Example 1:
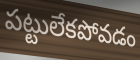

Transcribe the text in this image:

పట్టులేకపోవడం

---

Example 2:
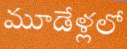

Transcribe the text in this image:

మూడేళ్లలో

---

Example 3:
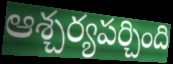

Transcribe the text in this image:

ఆశ్చర్యపర్చింది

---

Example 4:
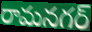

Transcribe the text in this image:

రామనగర్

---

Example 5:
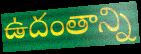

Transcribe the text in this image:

ఉదంతాన్ని